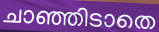
ചാഞ്ഞിടാതെ